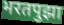
भरतपुझा